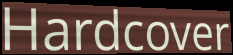
Hardcover